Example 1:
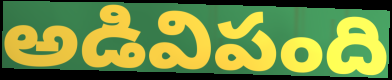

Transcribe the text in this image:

అడివిపంది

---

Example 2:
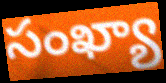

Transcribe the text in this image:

సంఖ్యా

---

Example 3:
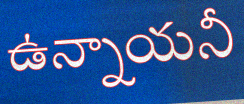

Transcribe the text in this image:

ఉన్నాయనీ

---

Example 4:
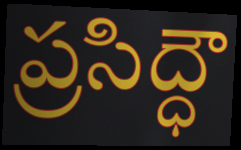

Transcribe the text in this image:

ప్రసిద్ధౌ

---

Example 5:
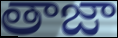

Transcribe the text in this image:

తాజా